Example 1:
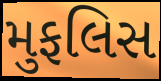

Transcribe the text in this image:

મુફલિસ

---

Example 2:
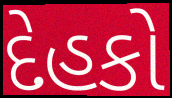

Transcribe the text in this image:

દેહકો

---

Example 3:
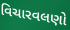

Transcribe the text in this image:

વિચારવલણો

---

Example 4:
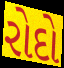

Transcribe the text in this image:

રોદો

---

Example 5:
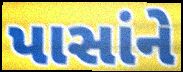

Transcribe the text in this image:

પાસાંને